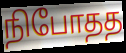
நிபோதத